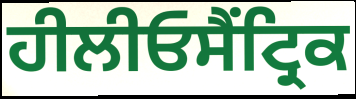
ਹੀਲੀਓਸੈਂਟ੍ਰਿਕ